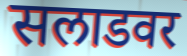
सलाडवर